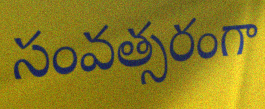
సంవత్సరంగా